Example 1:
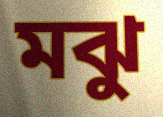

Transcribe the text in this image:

মঝু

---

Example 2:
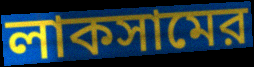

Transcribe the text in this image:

লাকসামের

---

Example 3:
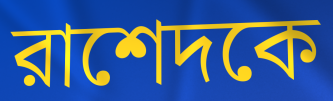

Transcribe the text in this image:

রাশেদকে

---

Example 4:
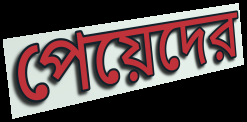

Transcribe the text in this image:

পেয়েদের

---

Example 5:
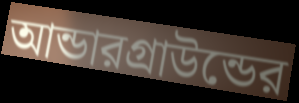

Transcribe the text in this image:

আন্ডারগ্রাউন্ডের